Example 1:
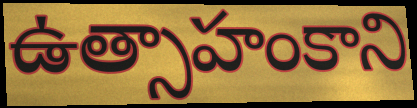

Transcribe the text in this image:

ఉత్సాహంకాని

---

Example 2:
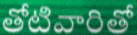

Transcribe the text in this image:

తోటివారితో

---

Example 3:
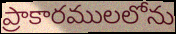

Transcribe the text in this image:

ప్రాకారములలోను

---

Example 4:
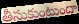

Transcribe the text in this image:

తీసుకుంటుందా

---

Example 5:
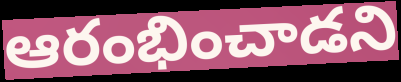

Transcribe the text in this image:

ఆరంభించాడని